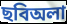
ছবিঅলা